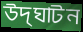
উদ্‌ঘাটন